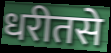
धरीतसे